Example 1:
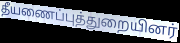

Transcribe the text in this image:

தீயணைப்புத்துறையினர்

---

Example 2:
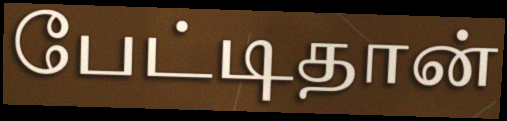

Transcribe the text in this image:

பேட்டிதான்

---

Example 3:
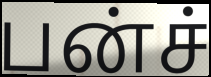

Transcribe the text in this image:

பன்ச்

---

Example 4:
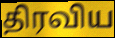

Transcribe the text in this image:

திரவிய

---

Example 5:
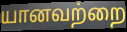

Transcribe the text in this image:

யானவற்றை